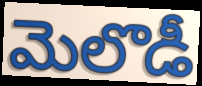
మెలొడీ